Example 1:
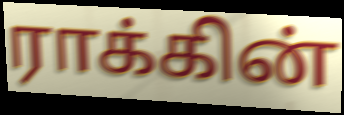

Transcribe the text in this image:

ராக்கின்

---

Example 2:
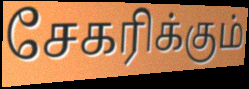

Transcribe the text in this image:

சேகரிக்கும்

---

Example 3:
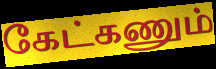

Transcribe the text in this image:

கேட்கணும்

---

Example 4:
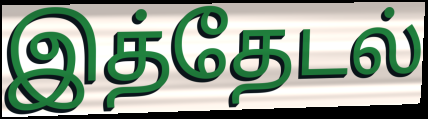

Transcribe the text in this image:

இத்தேடல்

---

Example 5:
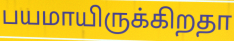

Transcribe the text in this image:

பயமாயிருக்கிறதா